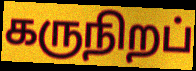
கருநிறப்